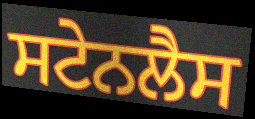
ਸਟੇਨਲੈਸ